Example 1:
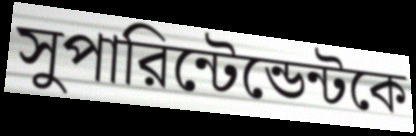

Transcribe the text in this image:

সুপারিন্টেন্ডেন্টকে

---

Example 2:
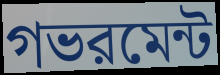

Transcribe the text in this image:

গভরমেন্ট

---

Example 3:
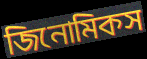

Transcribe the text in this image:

জিনোমিকস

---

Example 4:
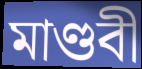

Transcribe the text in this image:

মাণ্ডবী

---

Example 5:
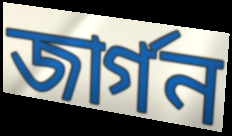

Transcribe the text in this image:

জার্গন